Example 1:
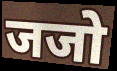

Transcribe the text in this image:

जजो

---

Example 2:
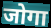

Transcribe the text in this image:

जोगा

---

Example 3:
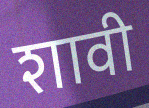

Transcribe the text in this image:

शावी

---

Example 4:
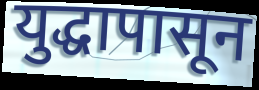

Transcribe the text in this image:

युद्धापासून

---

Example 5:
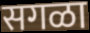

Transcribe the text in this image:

सगळा